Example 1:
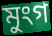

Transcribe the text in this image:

মুংগ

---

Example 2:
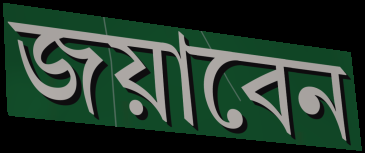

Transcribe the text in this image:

জয়াবেন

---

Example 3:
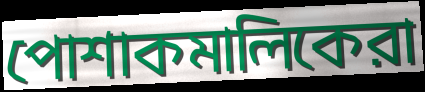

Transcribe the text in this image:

পোশাকমালিকেরা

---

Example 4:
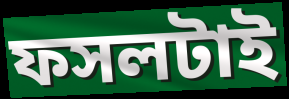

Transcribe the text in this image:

ফসলটাই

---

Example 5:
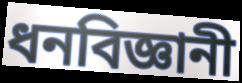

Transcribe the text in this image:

ধনবিজ্ঞানী